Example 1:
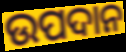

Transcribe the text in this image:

ଉପଦାନ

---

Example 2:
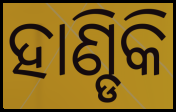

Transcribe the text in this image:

ହାଣ୍ଡିକି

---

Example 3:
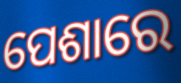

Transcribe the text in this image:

ପେଶାରେ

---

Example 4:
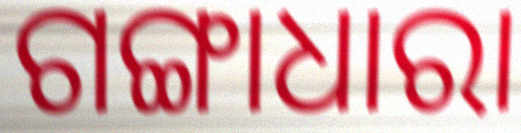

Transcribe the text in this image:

ଗଙ୍ଗାଧାରା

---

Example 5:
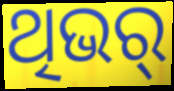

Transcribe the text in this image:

ଥିଭର୍